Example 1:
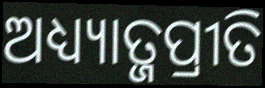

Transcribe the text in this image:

ଅଧ୍ୟ୍ୟାତ୍ଜପ୍ରୀତି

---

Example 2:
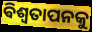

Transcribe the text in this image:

ଵିଶ୍ଵତାପନକୁ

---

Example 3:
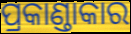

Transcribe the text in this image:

ପ୍ରକାଣ୍ଡାକାର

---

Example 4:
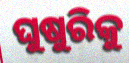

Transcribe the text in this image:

ଘୁଷୁରିକୁ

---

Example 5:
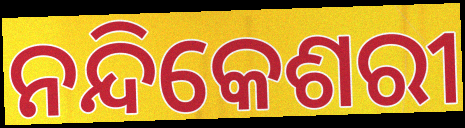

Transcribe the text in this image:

ନନ୍ଦିକେଶରୀ